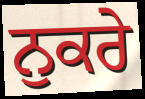
ਨੁਕਰੇ